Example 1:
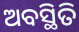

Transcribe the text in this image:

ଅବସ୍ଥିତି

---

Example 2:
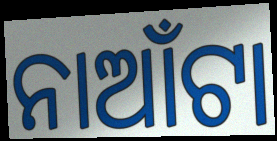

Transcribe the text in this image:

ନାଆଁଟା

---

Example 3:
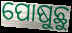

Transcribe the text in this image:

ପୋଷୁଛୁ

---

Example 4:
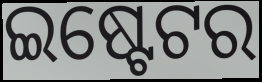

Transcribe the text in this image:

ଇଷ୍ଟେଟର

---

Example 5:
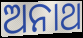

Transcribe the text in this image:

ଅନାଥ